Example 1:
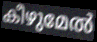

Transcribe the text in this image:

കീഴുമേൽ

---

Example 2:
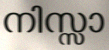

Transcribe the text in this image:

നിസ്സാ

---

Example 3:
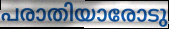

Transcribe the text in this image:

പരാതിയാരോടു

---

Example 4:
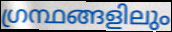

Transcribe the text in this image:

ഗ്രന്ഥങ്ങളിലും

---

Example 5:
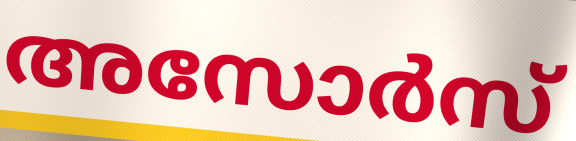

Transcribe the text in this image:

അസോർസ്